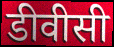
डीवीसी